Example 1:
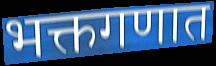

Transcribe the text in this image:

भक्तगणात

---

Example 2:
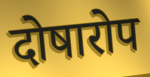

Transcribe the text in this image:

दोषारोप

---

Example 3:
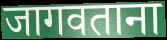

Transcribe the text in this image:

जागवताना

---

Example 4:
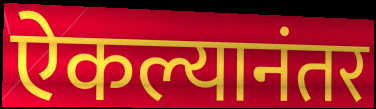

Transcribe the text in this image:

ऐकल्यानंतर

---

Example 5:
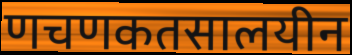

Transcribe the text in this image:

णचणकतसालयीन